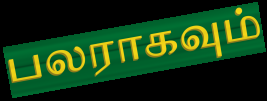
பலராகவும்